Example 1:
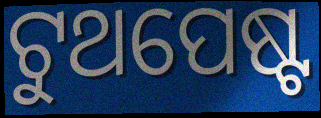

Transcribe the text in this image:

ଟୁଥପେଷ୍ଟ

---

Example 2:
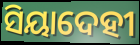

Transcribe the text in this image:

ସିୟାଦେହୀ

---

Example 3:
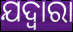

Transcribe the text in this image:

ଯଦ୍ୱାରା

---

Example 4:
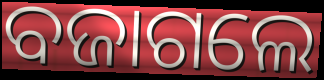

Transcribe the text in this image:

ବଜାଗଲେ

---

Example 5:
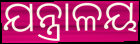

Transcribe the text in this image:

ଯନ୍ତ୍ରାଳୟ